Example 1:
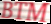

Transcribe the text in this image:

BTM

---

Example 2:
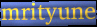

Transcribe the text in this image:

mrityune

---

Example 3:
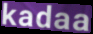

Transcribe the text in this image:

kadaa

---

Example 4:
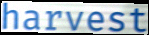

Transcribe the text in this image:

harvest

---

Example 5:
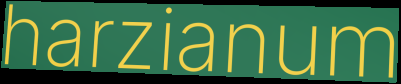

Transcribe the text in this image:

harzianum